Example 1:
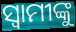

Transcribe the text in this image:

ସ୍ବାମୀଙ୍କୁ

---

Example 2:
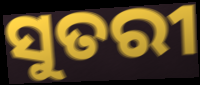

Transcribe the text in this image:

ସୁତରୀ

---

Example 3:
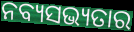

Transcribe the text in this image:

ନବ୍ୟସଭ୍ୟତାର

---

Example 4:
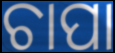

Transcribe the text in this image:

ଚାପା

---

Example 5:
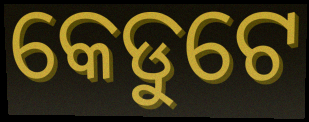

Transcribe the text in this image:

କେଡୁଟେ